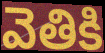
వెతికి